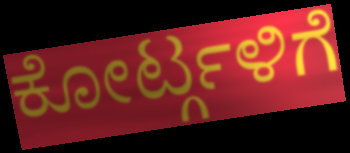
ಕೋರ್ಟ್ಗಳಿಗೆ